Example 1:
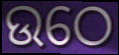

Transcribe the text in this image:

ଉଠେ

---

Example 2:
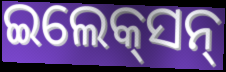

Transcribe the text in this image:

ଇଲେକ୍‌ସନ୍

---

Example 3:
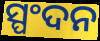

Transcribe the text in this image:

ସ୍ପଂଦନ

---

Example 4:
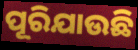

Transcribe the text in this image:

ପୂରିଯାଉଛି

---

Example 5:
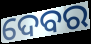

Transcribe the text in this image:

ଦେବର